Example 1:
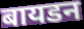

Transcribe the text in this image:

बायडन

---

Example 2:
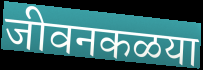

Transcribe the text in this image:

जीवनकळया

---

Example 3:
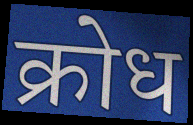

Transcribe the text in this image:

क्रोध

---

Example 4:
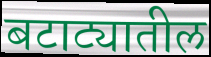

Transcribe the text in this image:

बटाट्यातील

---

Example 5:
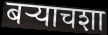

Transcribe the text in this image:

बर्‍याचशा